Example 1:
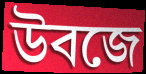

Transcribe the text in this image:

উবজে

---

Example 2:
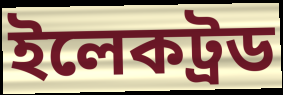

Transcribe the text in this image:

ইলেকট্রড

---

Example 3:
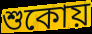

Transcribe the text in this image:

শুকোয়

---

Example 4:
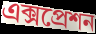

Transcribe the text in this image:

এক্সপ্রেশন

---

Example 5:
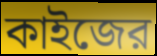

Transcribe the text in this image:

কাইজের